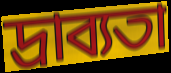
দ্রাব্যতা